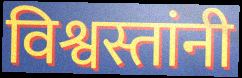
विश्वस्तांनी